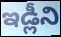
ఇడ్లీని